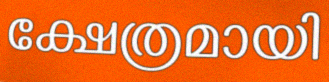
ക്ഷേത്രമായി